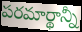
పరమార్థాన్నీ